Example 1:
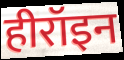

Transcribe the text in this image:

हीरॉइन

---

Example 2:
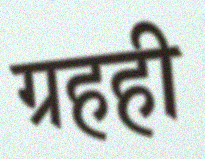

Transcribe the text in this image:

ग्रहही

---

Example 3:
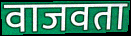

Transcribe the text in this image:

वाजवता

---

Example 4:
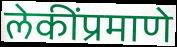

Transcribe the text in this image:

लेकींप्रमाणे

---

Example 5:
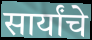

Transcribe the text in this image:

सार्यांचे